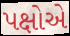
પક્ષોએ